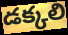
డక్కలి